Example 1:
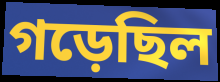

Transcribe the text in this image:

গড়েছিল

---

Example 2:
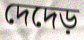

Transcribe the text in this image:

দেদেড়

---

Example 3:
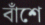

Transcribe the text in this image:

বাঁশে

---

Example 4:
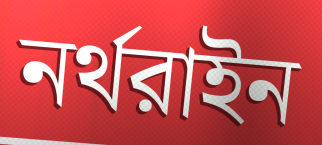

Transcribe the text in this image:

নর্থরাইন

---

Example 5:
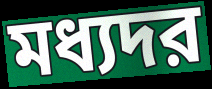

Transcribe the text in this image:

মধ্যদর